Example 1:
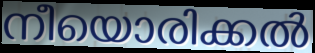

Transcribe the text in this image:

നീയൊരിക്കൽ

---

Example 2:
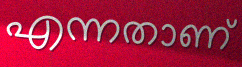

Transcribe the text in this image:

എന്നതാണ്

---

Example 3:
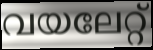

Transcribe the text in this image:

വയലേറ്റ്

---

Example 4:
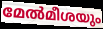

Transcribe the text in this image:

മേൽമീശയും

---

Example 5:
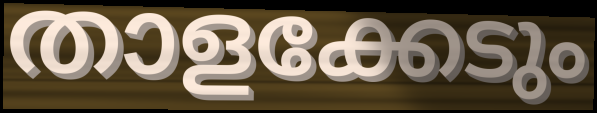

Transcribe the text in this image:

താളക്കേടും